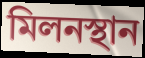
মিলনস্থান